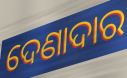
ଦେଣାଦାର